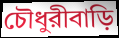
চৌধুরীবাড়ি